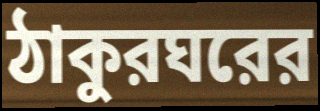
ঠাকুরঘরের